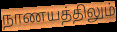
நாணயத்திலும்